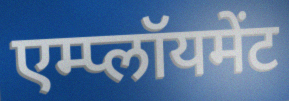
एम्प्लॉयमेंट